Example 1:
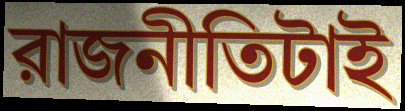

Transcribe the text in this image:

রাজনীতিটাই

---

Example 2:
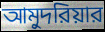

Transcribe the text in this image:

আমুদরিয়ার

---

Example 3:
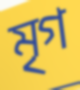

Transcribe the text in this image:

মৃগ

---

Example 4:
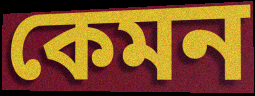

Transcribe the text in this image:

কেমন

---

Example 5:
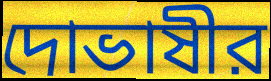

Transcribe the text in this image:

দোভাষীর